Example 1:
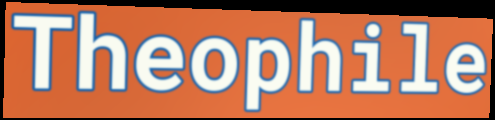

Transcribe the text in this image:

Theophile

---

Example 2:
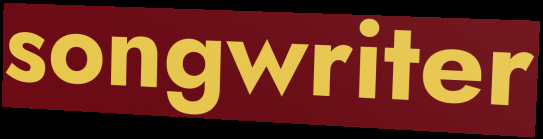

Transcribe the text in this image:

songwriter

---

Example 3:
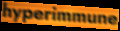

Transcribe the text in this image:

hyperimmune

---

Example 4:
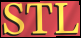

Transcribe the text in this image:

STL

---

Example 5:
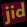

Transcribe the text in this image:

jid